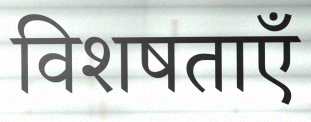
विशषताएँ